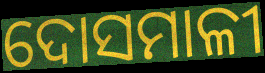
ଦୋସମାଳୀ